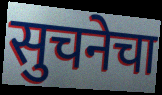
सुचनेचा